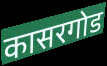
कासरगोड